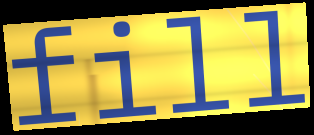
fill